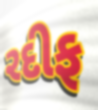
રદીફ